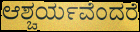
ಆಶ್ಚರ್ಯವೆಂದರೆ